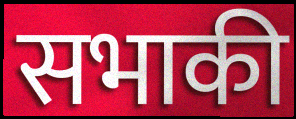
सभाकी